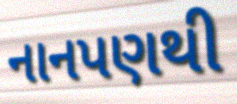
નાનપણથી